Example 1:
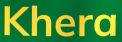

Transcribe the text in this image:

Khera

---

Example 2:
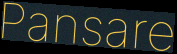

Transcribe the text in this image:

Pansare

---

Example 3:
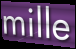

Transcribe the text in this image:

mille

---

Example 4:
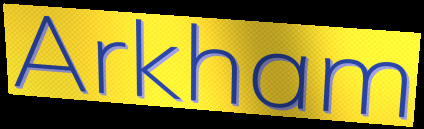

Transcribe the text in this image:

Arkham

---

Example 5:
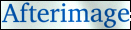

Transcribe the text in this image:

Afterimage